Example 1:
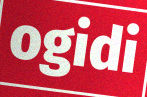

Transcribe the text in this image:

ogidi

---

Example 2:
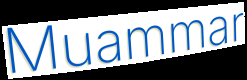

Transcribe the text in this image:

Muammar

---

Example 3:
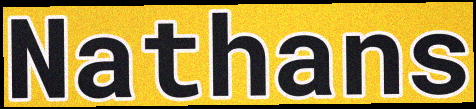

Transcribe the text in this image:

Nathans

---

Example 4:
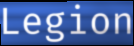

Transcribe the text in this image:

Legion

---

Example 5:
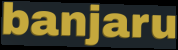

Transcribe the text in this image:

banjaru